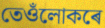
তেওঁলোকৰে